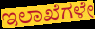
ಇಲಾಖೆಗಳೇ